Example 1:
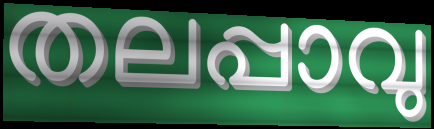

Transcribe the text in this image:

തലപ്പാവു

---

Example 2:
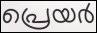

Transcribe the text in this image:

പ്രെയർ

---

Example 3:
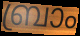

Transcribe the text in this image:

ബ്രാം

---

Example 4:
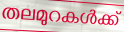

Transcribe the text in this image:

തലമുറകൾക്ക്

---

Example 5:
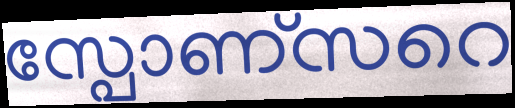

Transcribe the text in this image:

സ്പോണ്സറെ